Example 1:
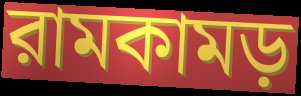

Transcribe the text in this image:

রামকামড়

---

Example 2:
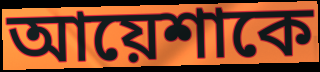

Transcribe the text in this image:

আয়েশাকে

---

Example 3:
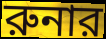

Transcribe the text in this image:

রুনার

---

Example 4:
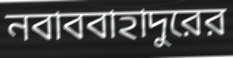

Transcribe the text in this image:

নবাববাহাদুরের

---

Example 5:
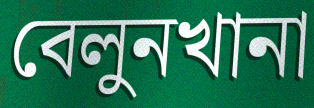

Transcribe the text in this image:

বেলুনখানা